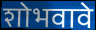
शोभवावे